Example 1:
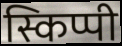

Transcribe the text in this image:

स्किप्पी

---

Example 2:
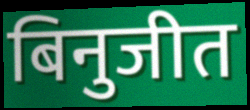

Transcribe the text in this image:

बिनुजीत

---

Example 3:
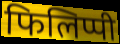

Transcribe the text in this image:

फिलिप्पी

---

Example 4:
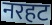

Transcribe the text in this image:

नरहट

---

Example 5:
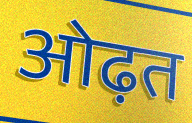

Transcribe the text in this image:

ओढ़त